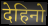
देहिनो